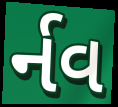
ર્નવ